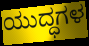
ಯುದ್ಧಗಳ